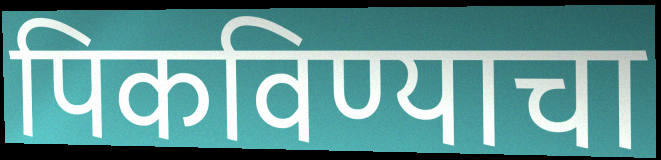
पिकविण्याचा